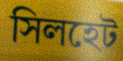
সিলহেট